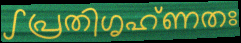
ഽപ്രതിഗൃഹ്ണതഃ